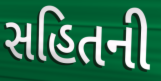
સહિતની